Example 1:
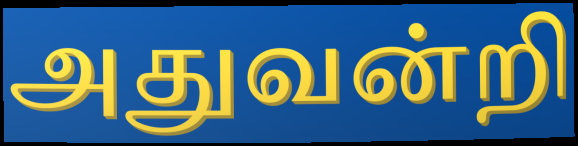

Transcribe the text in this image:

அதுவன்றி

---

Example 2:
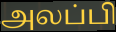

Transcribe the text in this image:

அலப்பி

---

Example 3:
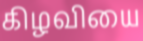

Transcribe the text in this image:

கிழவியை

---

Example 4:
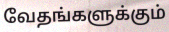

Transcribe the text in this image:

வேதங்களுக்கும்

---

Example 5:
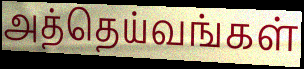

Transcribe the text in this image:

அத்தெய்வங்கள்